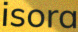
isora